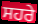
ਸਹਰੇ